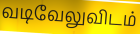
வடிவேலுவிடம்